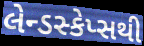
લેન્ડસ્કેપ્સથી